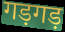
गड़गड़